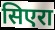
सिएरा